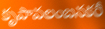
కృపావలంబనకరీ